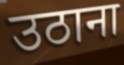
उठाना